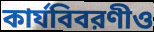
কার্যবিবরণীও